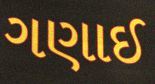
ગણાઈ